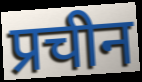
प्रचीन